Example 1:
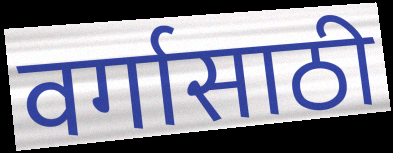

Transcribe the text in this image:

वर्गासाठी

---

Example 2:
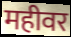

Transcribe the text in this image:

महीवर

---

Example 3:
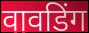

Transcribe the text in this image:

वावडिंग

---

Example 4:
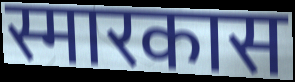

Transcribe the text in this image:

स्मारकास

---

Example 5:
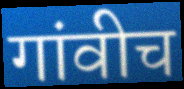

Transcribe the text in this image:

गांवीच